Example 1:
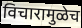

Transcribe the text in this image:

विचारामुळेच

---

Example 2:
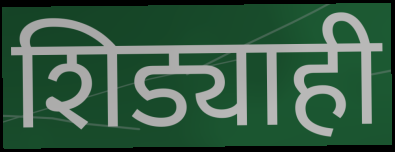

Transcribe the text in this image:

शिड्याही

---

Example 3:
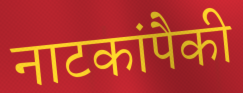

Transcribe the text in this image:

नाटकांपैकी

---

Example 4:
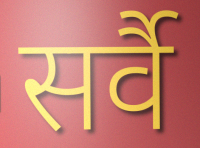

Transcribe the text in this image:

सर्वै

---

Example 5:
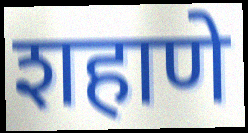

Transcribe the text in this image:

शहाणे